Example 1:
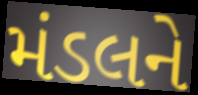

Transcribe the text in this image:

મંડલને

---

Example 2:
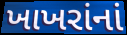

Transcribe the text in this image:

ખાખરાંનાં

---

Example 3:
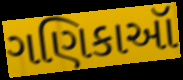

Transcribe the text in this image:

ગણિકાઑ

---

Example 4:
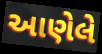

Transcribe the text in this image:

આણેલે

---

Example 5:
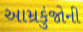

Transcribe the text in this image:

આમ્રકુંજોની